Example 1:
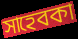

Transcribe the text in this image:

সাহেবকা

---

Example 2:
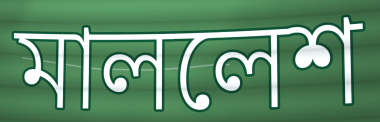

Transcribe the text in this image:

মাললেশ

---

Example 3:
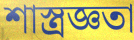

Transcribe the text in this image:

শাস্ত্রজ্ঞতা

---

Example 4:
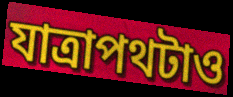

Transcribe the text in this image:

যাত্রাপথটাও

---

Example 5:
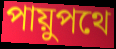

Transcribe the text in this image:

পায়ুপথে